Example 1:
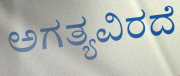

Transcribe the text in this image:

ಅಗತ್ಯವಿರದೆ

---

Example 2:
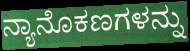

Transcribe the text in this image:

ನ್ಯಾನೊಕಣಗಳನ್ನು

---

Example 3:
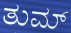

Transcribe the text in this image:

ತುಮ್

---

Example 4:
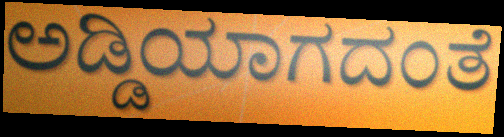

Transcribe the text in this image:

ಅಡ್ಡಿಯಾಗದಂತೆ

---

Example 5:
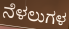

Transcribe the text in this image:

ನೆಳಲುಗಳ